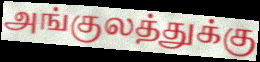
அங்குலத்துக்கு